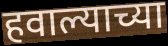
हवाल्याच्या